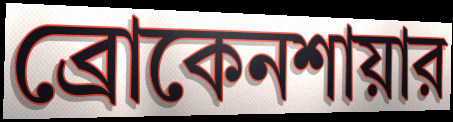
ব্রোকেনশায়ার